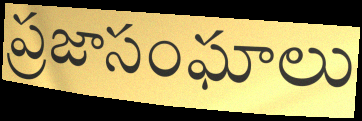
ప్రజాసంఘాలు